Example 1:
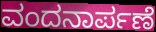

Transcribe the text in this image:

ವಂದನಾರ್ಪಣೆ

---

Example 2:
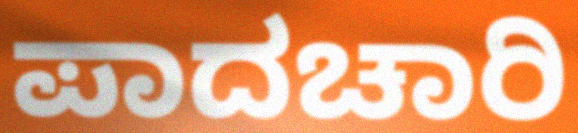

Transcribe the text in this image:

ಪಾದಚಾರಿ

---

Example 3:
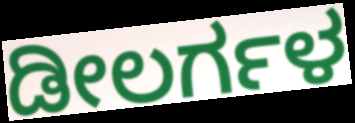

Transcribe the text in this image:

ಡೀಲರ್ಗಳ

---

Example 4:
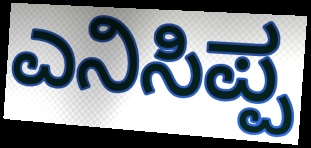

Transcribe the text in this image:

ಎನಿಸಿಪ್ಪ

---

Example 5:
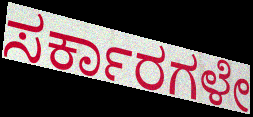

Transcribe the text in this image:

ಸರ್ಕಾರಗಳೇ